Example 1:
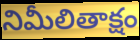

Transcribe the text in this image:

నిమీలితాక్షం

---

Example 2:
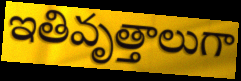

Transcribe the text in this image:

ఇతివృత్తాలుగా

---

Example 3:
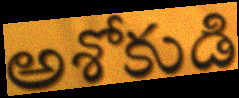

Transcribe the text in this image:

అశోకుడి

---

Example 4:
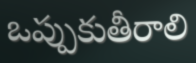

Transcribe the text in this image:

ఒప్పుకుతీరాలి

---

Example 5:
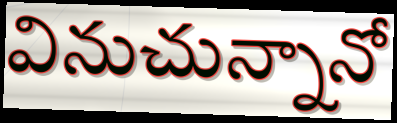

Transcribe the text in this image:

వినుచున్నానో